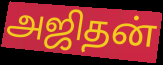
அஜிதன்